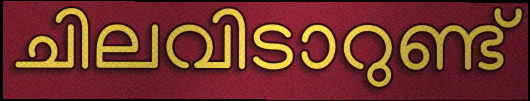
ചിലവിടാറുണ്ട്